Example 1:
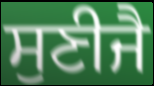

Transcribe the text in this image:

ਸੁਣੀਜੈ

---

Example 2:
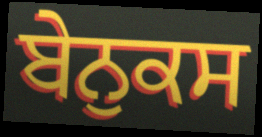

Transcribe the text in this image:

ਬੇਨੁਕਸ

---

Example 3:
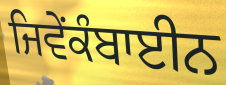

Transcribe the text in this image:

ਜਿਵੇਂਕੰਬਾਈਨ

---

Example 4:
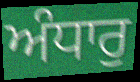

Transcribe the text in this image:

ਅੰਧਾਰੁ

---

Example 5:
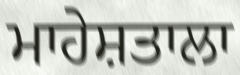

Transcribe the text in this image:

ਮਾਹੇਸ਼ਤਾਲਾ